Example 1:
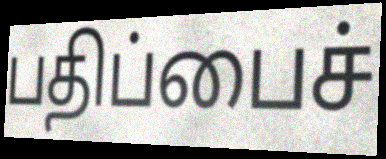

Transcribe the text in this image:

பதிப்பைச்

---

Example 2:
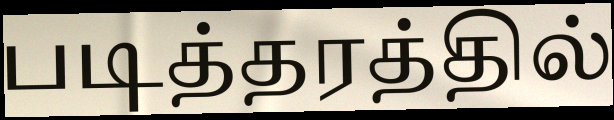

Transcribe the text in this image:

படித்தரத்தில்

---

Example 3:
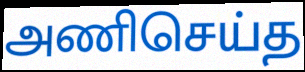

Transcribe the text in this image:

அணிசெய்த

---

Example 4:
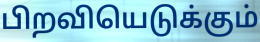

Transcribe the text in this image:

பிறவியெடுக்கும்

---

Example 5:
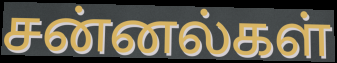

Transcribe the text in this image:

சன்னல்கள்